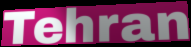
Tehran